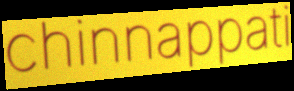
chinnappati